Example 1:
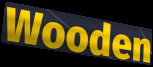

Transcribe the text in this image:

Wooden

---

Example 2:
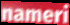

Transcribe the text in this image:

nameri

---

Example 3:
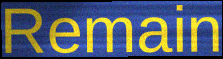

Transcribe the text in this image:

Remain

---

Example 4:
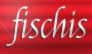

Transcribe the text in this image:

fischis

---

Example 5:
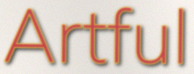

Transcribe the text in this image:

Artful